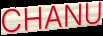
CHANU